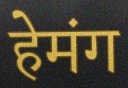
हेमंग